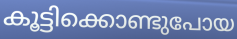
കൂട്ടിക്കൊണ്ടുപോയ